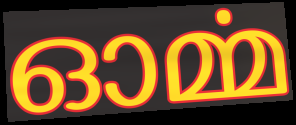
ഓൎമ്മ